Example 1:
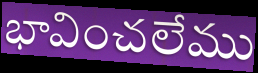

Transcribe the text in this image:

భావించలేము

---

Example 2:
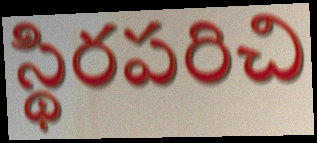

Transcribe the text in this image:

స్థిరపరిచి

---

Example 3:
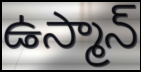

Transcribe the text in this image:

ఉస్మాన్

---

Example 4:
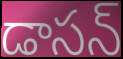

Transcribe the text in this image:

డాసన్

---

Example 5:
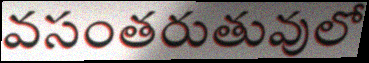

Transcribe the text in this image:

వసంతరుతువులో